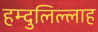
हम्दुलिल्लाह